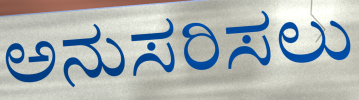
ಅನುಸರಿಸಲು